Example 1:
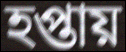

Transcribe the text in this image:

হপ্তায়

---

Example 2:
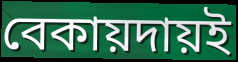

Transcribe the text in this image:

বেকায়দায়ই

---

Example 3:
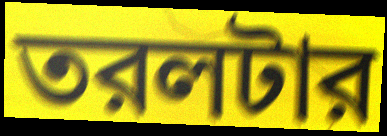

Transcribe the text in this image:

তরলটার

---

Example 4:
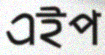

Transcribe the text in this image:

এইপ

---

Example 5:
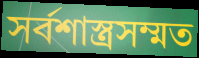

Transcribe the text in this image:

সর্বশাস্ত্রসম্মত